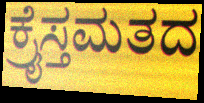
ಕ್ರೈಸ್ತಮತದ